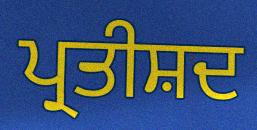
ਪ੍ਰਤੀਸ਼ਦ